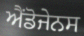
ਐਂਡੋਜੇਨਸ